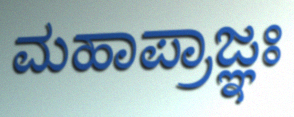
ಮಹಾಪ್ರಾಜ್ಞಃ